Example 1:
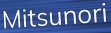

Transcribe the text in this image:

Mitsunori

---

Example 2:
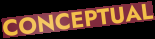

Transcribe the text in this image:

CONCEPTUAL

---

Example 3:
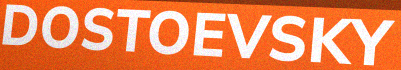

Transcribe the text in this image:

DOSTOEVSKY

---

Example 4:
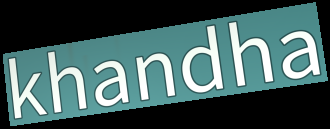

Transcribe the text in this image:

khandha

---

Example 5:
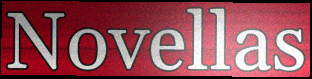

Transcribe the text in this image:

Novellas